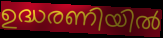
ഉദ്ധരണിയിൽ